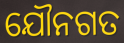
ଯୌନଗତ